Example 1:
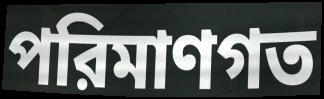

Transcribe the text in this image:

পরিমাণগত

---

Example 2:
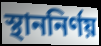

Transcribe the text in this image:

স্থাননির্ণয়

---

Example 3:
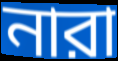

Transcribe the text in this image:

নারা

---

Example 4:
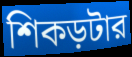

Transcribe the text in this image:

শিকড়টার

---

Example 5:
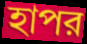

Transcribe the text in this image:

হাপর